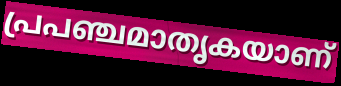
പ്രപഞ്ചമാതൃകയാണ്